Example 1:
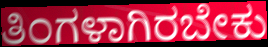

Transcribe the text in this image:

ತಿಂಗಳಾಗಿರಬೇಕು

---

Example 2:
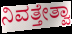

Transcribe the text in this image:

ನಿವತ್ತೇತ್ವಾ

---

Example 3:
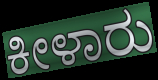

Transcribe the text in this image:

ಕೀಳಾರು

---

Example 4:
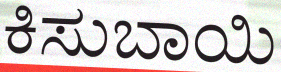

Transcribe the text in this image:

ಕಿಸುಬಾಯಿ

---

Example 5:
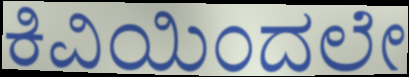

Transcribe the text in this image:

ಕಿವಿಯಿಂದಲೇ